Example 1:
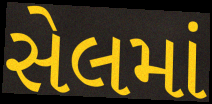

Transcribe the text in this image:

સેલમાં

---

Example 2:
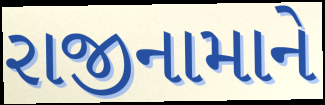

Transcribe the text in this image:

રાજીનામાને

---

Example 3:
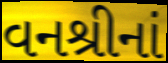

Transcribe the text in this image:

વનશ્રીનાં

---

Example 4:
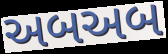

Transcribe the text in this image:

અબઅબ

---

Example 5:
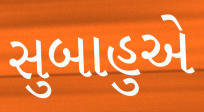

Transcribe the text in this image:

સુબાહુએ